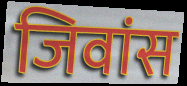
जिवांस